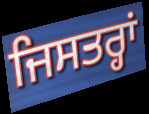
ਜਿਸਤਰ੍ਹਾਂ